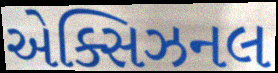
એક્સિઝનલ